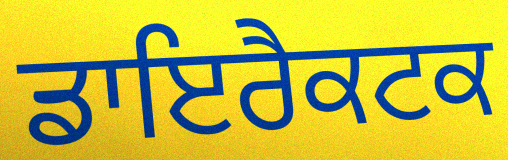
ਡਾਇਰੈਕਟਕ